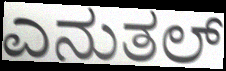
ಎನುತಲ್